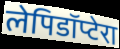
लेपिडॉप्टेरा